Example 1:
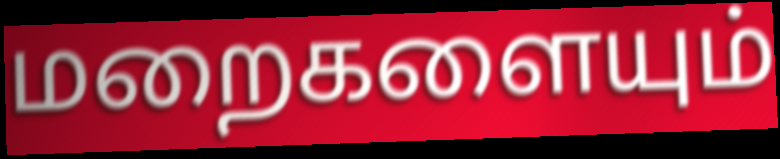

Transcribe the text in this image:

மறைகளையும்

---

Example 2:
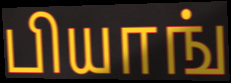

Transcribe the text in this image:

பியாங்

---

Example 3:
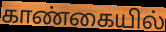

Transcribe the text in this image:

காண்கையில்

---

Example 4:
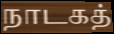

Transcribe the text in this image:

நாடகத்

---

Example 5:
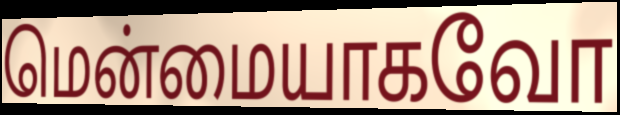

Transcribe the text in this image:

மென்மையாகவோ